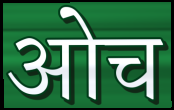
ओच